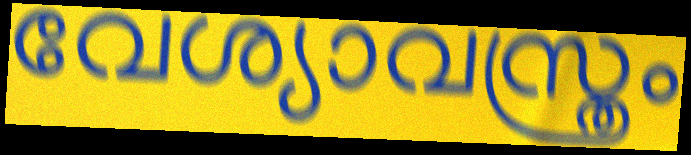
വേശ്യാവസ്ത്രം